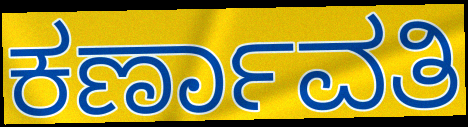
ಕರ್ಣಾವತಿ